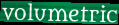
volumetric